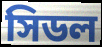
সিডল